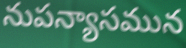
నుపన్యాసమున